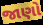
જાણો